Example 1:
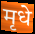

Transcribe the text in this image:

मृधे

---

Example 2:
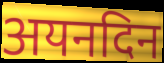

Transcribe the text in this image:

अयनदिन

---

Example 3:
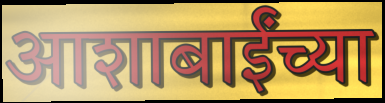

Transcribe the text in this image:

आशाबाईंच्या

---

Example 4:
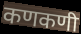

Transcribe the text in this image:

कणकणी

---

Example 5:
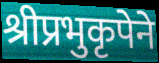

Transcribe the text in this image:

श्रीप्रभुकृपेने